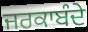
ਜਰਕਾਬੰਦੇ